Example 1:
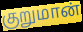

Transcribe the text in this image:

குறுமான்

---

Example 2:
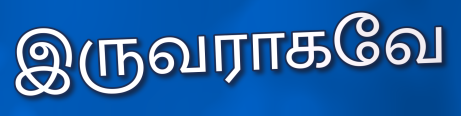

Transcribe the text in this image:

இருவராகவே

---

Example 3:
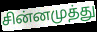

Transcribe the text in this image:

சின்னமுத்து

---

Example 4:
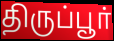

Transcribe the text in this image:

திருப்பூர்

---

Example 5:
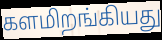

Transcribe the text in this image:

களமிறங்கியது